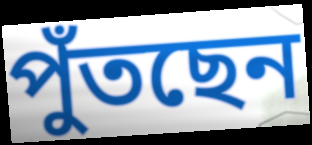
পুঁতছেন